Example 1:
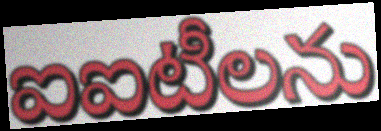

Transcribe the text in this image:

ఐఐటీలను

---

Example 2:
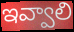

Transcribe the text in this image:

ఇవ్వాలి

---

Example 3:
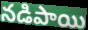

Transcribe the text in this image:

నడిపాయి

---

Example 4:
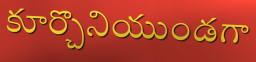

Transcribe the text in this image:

కూర్చొనియుండగా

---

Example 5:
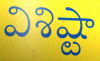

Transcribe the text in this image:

విశిష్టా